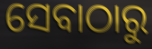
ସେବାଠାରୁ